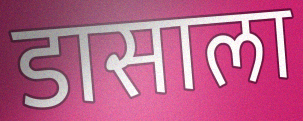
डासाला